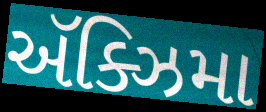
ઍક્ઝિમા